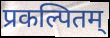
प्रकल्पितम्